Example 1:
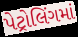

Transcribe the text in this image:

પેટ્રોલિંગમાં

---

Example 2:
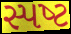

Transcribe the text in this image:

સ્પષ્‍ટ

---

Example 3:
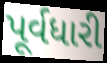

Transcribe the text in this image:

પૂર્વધારી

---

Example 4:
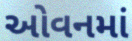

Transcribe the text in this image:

ઓવનમાં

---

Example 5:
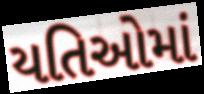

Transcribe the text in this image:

યતિઓમાં